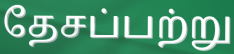
தேசப்பற்று